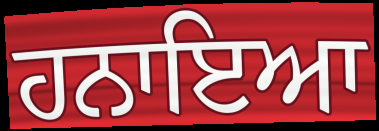
ਹਨਾਇਆ